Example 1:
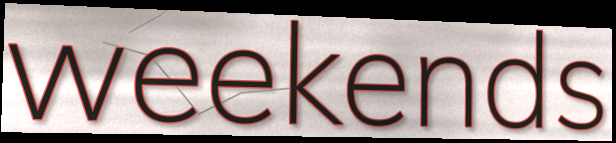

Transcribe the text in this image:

weekends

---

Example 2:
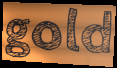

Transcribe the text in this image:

gold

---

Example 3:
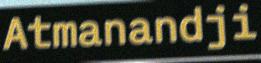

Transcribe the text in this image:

Atmanandji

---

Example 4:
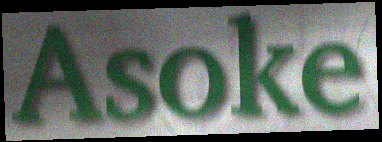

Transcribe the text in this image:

Asoke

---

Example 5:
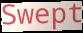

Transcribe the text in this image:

Swept